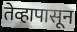
तेव्हापासून